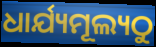
ଧାର୍ଯ୍ୟମୂଲ୍ୟଠୁ